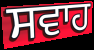
ਸਵਾਹ